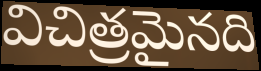
విచిత్రమైనది